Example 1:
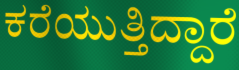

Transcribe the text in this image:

ಕರೆಯುತ್ತಿದ್ದಾರೆ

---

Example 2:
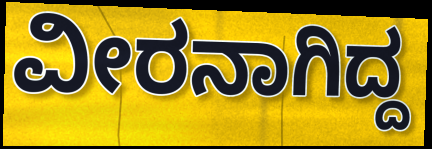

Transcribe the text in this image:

ವೀರನಾಗಿದ್ದ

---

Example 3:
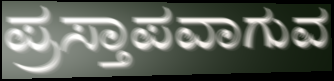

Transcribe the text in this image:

ಪ್ರಸ್ತಾಪವಾಗುವ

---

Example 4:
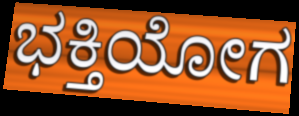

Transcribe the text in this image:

ಭಕ್ತಿಯೋಗ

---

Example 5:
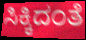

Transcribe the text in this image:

ಸಿಕ್ಕಿದಂತೆ